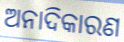
ଅନାଦିକାରଣ